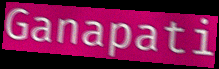
Ganapati